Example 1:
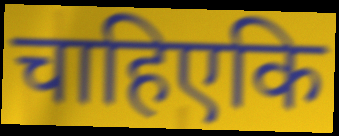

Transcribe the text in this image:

चाहिएकि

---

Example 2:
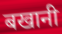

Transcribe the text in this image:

बखानी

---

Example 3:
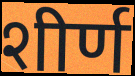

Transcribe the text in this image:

शीर्ण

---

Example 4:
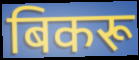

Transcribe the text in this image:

बिकरू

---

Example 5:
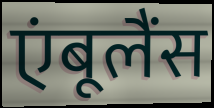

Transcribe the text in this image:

एंबूलैंस